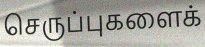
செருப்புகளைக்